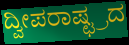
ದ್ವೀಪರಾಷ್ಟ್ರದ